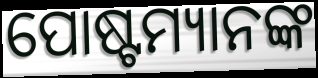
ପୋଷ୍ଟମ୍ୟାନଙ୍କ